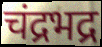
चंद्रभद्र